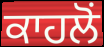
ਕਾਹਲੋਂ